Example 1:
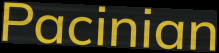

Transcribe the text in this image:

Pacinian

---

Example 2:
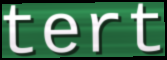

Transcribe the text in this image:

tert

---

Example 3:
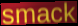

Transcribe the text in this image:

smack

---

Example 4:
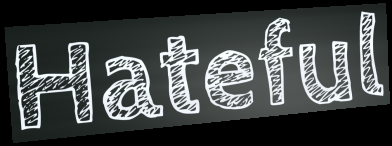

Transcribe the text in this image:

Hateful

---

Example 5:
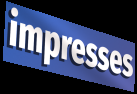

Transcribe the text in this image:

impresses